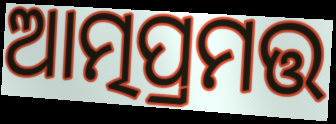
ଆତ୍ମପ୍ରମତ୍ତ